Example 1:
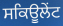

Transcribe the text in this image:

ਸਕਿਊਲੇਂਟ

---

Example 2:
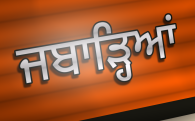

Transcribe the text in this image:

ਜਬਾੜ੍ਹਿਆਂ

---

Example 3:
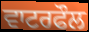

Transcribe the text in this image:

ਵਾਟਰਫੌਲ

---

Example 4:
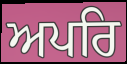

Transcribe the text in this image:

ਅਪਰਿ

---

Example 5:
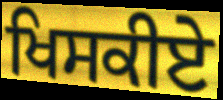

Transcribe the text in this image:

ਖਿਸਕੀਏ